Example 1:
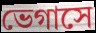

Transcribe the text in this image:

ভেগাসে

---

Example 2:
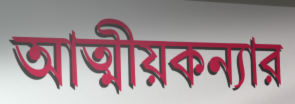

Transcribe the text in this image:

আত্মীয়কন্যার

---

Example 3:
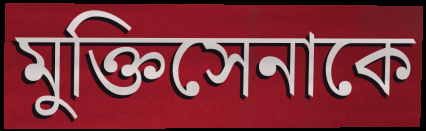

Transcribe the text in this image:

মুক্তিসেনাকে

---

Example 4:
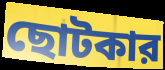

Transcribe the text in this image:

ছোটকার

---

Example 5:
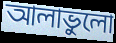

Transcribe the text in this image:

আলাভুলো